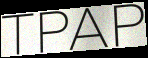
TPAP